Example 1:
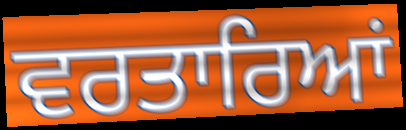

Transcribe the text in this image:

ਵਰਤਾਰਿਆਂ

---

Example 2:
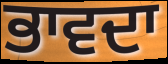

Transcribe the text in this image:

ਭਾਵਦਾ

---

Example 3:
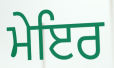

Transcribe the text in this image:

ਮੇਇਰ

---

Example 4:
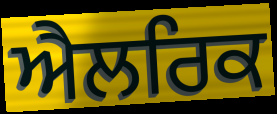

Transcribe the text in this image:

ਐਲਰਿਕ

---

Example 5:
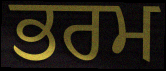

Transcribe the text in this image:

ਭਰਮ